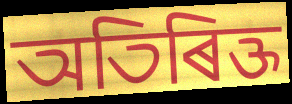
অতিৰিক্ত